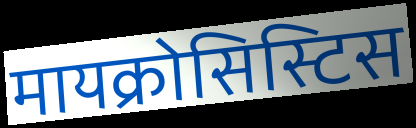
मायक्रोसिस्टिस